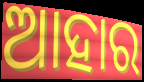
ଆହାର